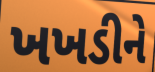
ખખડીને